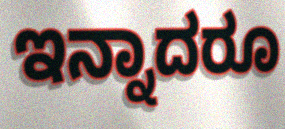
ಇನ್ನಾದರೂ